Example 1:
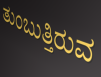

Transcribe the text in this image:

ತುಂಬುತ್ತಿರುವ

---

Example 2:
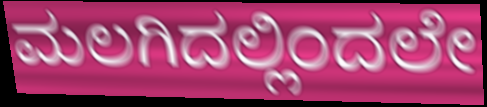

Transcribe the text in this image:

ಮಲಗಿದಲ್ಲಿಂದಲೇ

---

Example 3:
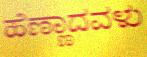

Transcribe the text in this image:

ಹೆಣ್ಣಾದವಳು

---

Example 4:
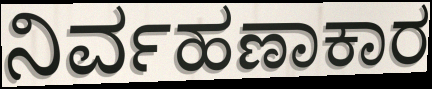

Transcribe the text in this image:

ನಿರ್ವಹಣಾಕಾರ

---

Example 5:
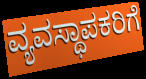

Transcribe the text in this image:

ವ್ಯವಸ್ಥಾಪಕರಿಗೆ